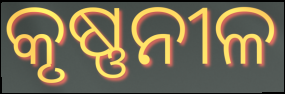
କୃଷ୍ଣନୀଳ